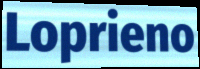
Loprieno